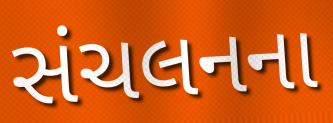
સંચલનના